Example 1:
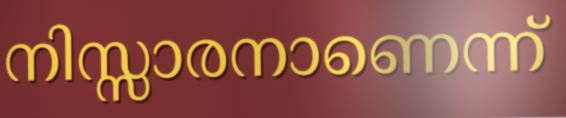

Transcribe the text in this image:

നിസ്സാരനാണെന്ന്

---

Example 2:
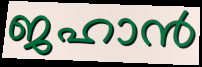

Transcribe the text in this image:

ജഹാൻ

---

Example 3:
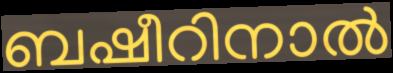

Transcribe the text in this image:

ബഷീറിനാൽ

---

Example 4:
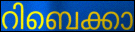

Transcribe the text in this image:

റിബെക്കാ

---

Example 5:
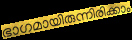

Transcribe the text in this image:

ഭാഗമായിരുന്നിരിക്കാം